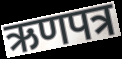
ऋणपत्र